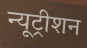
न्यूट्रीशन